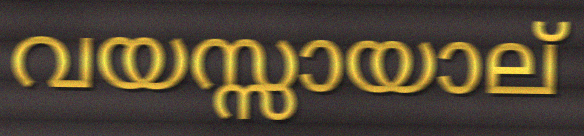
വയസ്സായാല്